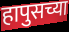
हापुसच्या